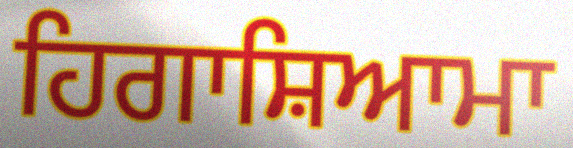
ਹਿਗਾਸ਼ਿਆਮਾ